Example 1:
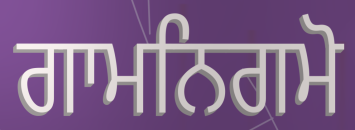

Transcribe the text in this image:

ਗਾਮਨਿਗਮੋ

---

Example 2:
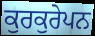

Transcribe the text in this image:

ਕੁਰਕੁਰੇਪਨ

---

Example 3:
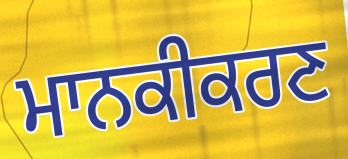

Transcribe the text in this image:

ਮਾਨਕੀਕਰਣ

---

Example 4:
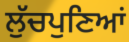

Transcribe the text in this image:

ਲੁੱਚਪੁਣਿਆਂ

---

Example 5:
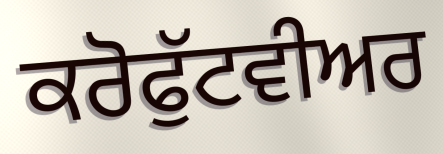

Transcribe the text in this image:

ਕਰੋਫੁੱਟਵੀਅਰ